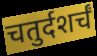
चतुर्दशर्चं